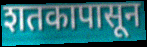
शतकापासून